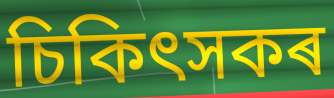
চিকিৎসকৰ